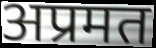
अप्रमत